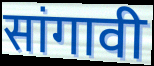
सांगावी